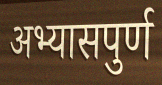
अभ्यासपुर्ण